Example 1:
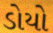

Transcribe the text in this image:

ડોયો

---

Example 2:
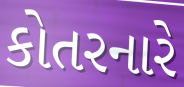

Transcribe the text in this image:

કોતરનારે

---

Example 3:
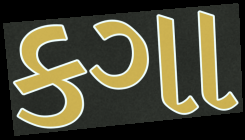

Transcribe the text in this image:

કગા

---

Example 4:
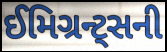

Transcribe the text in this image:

ઈમિગ્રન્ટ્સની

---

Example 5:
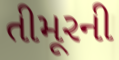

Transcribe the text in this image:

તીમૂરની